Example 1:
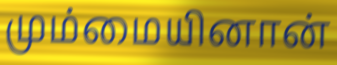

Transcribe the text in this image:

மும்மையினான்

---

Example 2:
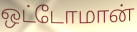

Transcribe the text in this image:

ஒட்டோமான்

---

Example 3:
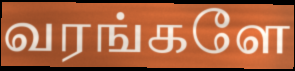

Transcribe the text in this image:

வரங்களே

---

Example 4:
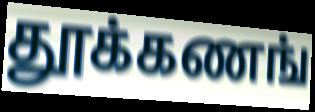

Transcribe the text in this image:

தூக்கணங்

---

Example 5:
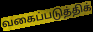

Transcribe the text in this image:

வகைப்படுத்திக்